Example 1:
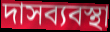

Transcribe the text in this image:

দাসব্যবস্থা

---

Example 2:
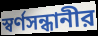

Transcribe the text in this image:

স্বর্ণসন্ধানীর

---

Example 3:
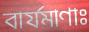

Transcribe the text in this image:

বার্যমাণাঃ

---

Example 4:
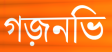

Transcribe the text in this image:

গজ়নভি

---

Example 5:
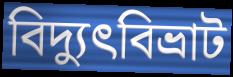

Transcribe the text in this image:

বিদ্যুৎবিভ্রাট